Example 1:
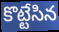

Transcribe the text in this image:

కొట్టేసిన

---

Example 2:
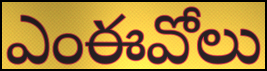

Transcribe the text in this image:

ఎంఈవోలు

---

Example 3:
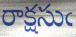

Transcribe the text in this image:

రాక్షసుఁ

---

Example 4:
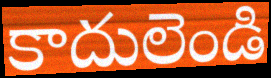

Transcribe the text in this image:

కాదులెండి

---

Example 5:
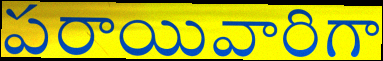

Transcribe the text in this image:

పరాయివారిగా